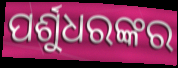
ପର୍ଶୁଧରଙ୍କର